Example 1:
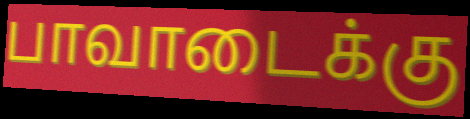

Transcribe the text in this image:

பாவாடைக்கு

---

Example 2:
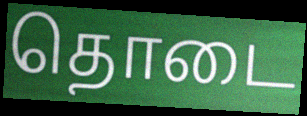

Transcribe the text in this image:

தொடை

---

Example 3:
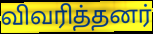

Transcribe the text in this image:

விவரித்தனர்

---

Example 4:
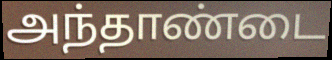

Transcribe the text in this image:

அந்தாண்டை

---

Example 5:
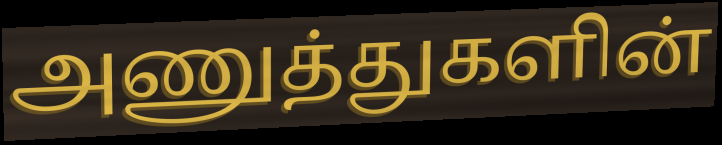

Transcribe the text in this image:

அணுத்துகளின்